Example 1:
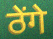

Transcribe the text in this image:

ठेंगे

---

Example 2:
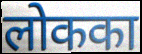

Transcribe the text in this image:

लोकका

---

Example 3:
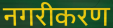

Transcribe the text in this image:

नगरीकरण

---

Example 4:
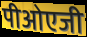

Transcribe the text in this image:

पीओएजी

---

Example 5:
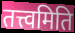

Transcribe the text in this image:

तत्त्वमिति